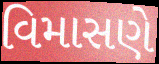
વિમાસણે